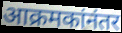
आक्रमकांनंतर